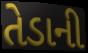
તેડાની